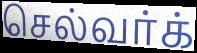
செல்வர்க்